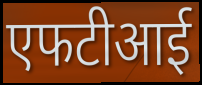
एफटीआई